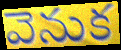
వెనుక